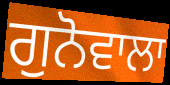
ਗੁਨੋਵਾਲਾ